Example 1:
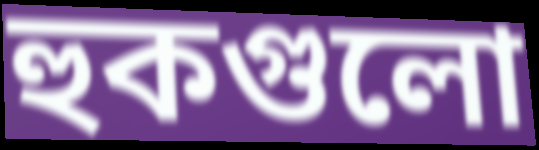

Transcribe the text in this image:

হুকগুলো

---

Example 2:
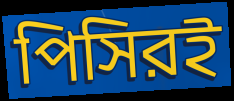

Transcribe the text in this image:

পিসিরই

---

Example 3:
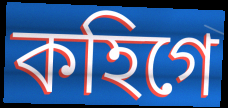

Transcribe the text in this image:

কহিগে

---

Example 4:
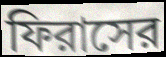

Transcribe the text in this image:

ফিরাসের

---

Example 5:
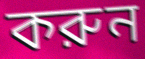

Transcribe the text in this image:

করুন